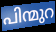
പിന്മുറ